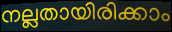
നല്ലതായിരിക്കാം